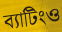
ব্যাটিংও